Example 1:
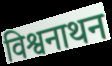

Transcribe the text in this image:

विश्वनाथन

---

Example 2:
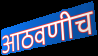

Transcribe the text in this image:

आठवणीच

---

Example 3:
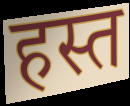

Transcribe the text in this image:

हस्त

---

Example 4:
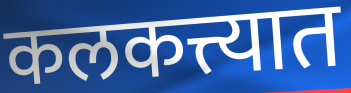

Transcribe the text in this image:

कलकत्त्यात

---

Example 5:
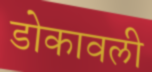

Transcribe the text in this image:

डोकावली